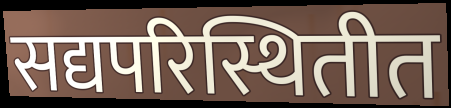
सद्यपरिस्थितीत